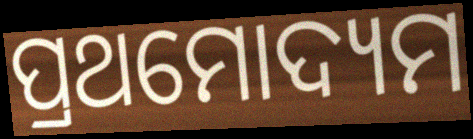
ପ୍ରଥମୋଦ୍ୟମ